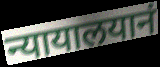
न्यायालयानं